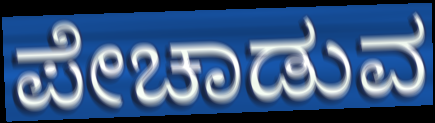
ಪೇಚಾಡುವ